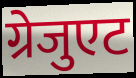
ग्रेजुएट